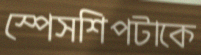
স্পেসশিপটাকে